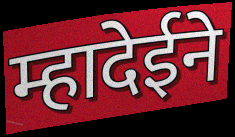
म्हादेईने